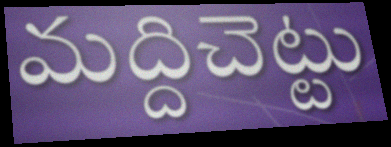
మద్దిచెట్టు